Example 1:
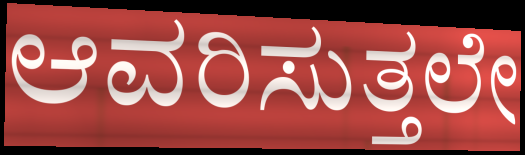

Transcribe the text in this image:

ಆವರಿಸುತ್ತಲೇ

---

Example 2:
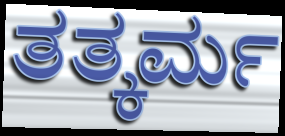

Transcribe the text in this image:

ತತ್ಕರ್ಮ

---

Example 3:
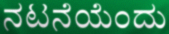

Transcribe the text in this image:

ನಟನೆಯೆಂದು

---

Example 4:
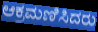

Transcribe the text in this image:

ಆಕ್ರಮಣಿಸಿದರು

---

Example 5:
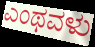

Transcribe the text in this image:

ಎಂಥವಳು